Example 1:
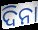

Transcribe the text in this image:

ଦିନା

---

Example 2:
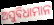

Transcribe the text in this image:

ଅସୁବିଧାମାନ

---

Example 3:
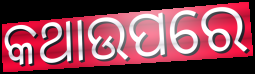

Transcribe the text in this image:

କଥାଉପରେ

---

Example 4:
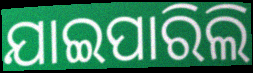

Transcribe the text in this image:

ଯାଇପାରିଲି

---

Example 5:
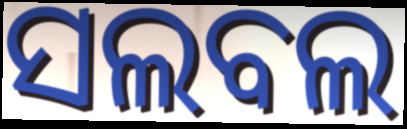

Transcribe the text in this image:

ସଲବଲ